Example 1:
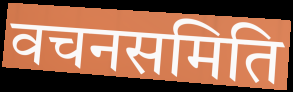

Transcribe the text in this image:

वचनसमिति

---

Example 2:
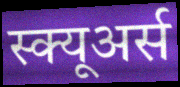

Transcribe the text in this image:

स्क्यूअर्स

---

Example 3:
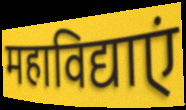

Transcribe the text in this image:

महाविद्याएं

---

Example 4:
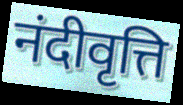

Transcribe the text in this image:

नंदीवृत्ति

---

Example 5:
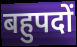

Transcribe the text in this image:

बहुपदों